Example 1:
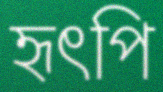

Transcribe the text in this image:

হৃৎপি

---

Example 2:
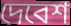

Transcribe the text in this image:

দেবেশ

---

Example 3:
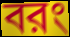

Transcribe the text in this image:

বরং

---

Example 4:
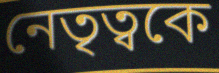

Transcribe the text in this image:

নেতৃত্বকে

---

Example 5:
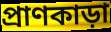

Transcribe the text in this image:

প্রাণকাড়া